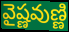
వైష్ణవుణ్ణి